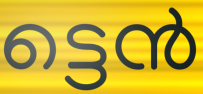
ട്ടെൻ